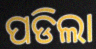
ପଡିଲା